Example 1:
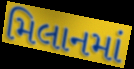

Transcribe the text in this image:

મિલાનમાં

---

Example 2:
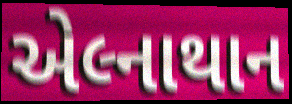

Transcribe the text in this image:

એલ્નાથાન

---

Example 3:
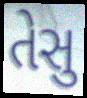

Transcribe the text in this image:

તેસુ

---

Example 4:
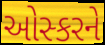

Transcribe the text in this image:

ઓસ્કરને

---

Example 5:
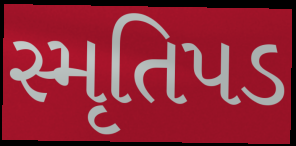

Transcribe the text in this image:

સ્મૃતિપડ